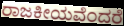
ರಾಜಕೀಯವೆಂದರೆ